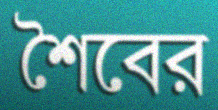
শৈবের